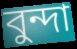
বুন্দা